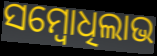
ସମ୍ବୋଧିଲାଭ